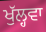
ਖੁੱਲ੍ਹਵਾ